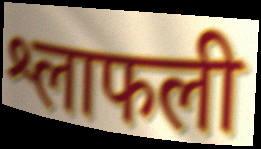
श्लाफली